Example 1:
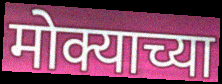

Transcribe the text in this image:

मोक्याच्या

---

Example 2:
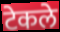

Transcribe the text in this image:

टेकले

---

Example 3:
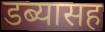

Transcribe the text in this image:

डब्यासह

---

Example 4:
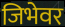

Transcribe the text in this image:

जिभेवर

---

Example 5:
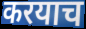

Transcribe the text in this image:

करयाच